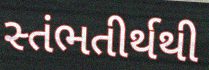
સ્તંભતીર્થથી